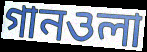
গানওলা